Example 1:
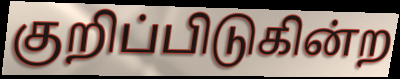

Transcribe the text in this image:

குறிப்பிடுகின்ற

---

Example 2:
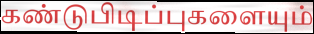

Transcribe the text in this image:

கண்டுபிடிப்புகளையும்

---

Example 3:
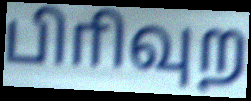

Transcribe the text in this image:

பிரிவுற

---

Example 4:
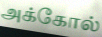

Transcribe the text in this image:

அக்கோல்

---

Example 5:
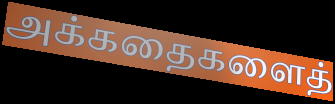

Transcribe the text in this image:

அக்கதைகளைத்